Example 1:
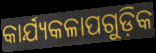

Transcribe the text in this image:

କାର୍ଯ୍ୟକଳାପଗୁଡ଼ିକ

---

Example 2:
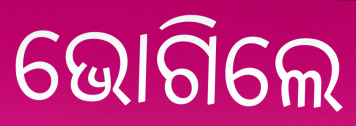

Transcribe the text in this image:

ଭୋଗିଲେ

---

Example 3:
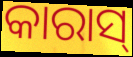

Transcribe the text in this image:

କାରାସ୍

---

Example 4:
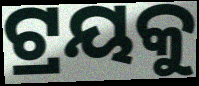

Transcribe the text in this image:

ଟ୍ରୟକୁ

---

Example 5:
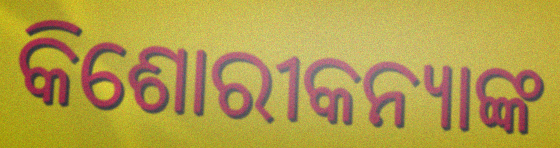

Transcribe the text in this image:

କିଶୋରୀକନ୍ୟାଙ୍କ